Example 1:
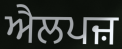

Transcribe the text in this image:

ਐਲਪਜ਼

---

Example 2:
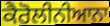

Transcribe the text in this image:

ਕੈਰੋਲੀਨੀਆਨਾ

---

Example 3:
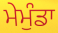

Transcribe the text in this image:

ਮੇਮੁੰਡਾ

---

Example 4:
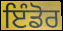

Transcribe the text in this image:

ਇੰਡੋਰ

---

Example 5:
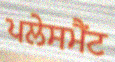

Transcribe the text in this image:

ਪਲੇਸਮੈਂਟ